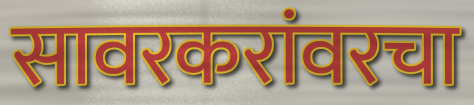
सावरकरांवरचा